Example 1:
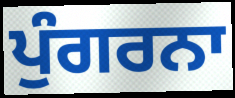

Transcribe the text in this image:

ਪੁੰਗਰਨਾ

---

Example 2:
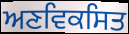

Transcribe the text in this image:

ਅਣਵਿਕਸਿਤ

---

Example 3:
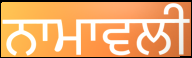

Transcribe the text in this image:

ਨਾਮਾਵਲੀ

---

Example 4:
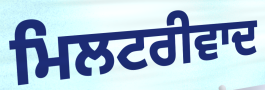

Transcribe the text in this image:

ਮਿਲਟਰੀਵਾਦ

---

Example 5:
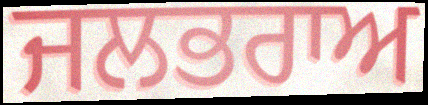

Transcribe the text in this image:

ਜਲਭਰਾਅ